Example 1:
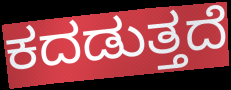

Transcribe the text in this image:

ಕದಡುತ್ತದೆ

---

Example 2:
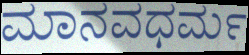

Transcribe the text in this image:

ಮಾನವಧರ್ಮ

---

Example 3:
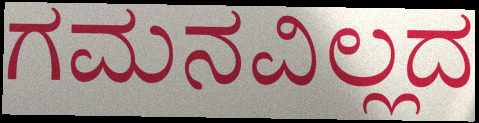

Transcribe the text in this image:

ಗಮನವಿಲ್ಲದ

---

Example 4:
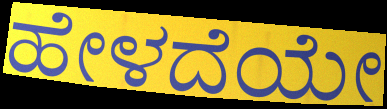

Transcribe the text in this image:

ಹೇಳದೆಯೇ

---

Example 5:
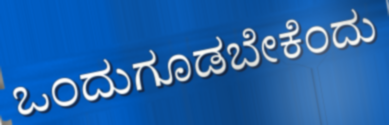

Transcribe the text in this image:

ಒಂದುಗೂಡಬೇಕೆಂದು